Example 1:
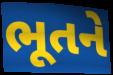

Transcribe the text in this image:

ભૂતને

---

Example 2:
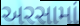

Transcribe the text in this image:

અરસામાં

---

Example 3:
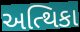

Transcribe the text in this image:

અત્થિકા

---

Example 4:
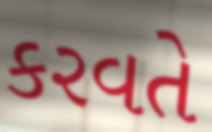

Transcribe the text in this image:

કરવતે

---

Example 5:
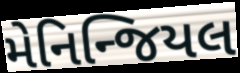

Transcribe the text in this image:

મેનિન્જિયલ